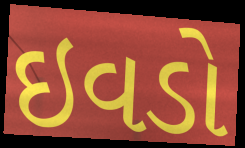
ઇવડો